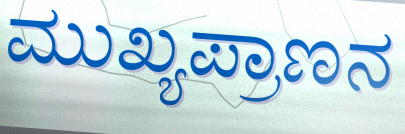
ಮುಖ್ಯಪ್ರಾಣನ